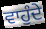
ਵਾਹੁੰਦੇ